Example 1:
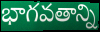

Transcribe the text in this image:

భాగవతాన్ని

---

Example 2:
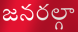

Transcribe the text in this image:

జనరల్గా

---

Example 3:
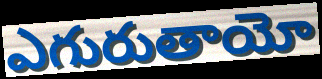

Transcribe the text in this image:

ఎగురుతాయో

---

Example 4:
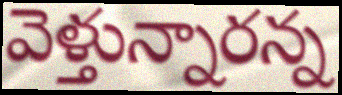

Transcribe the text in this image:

వెళ్తున్నారన్న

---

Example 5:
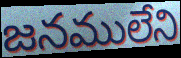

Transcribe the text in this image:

జనములేని